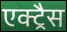
एक्ट्रैस